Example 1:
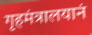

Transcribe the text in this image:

गृहमंत्रालयानं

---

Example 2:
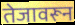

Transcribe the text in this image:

तेजावरून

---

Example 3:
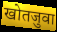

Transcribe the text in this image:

खोतजुवा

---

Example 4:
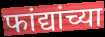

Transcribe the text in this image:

फांद्यांच्या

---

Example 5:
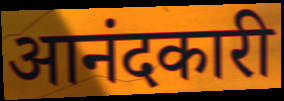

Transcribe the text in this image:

आनंदकारी